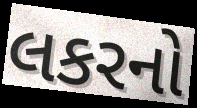
લકરનો